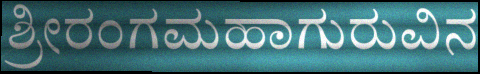
ಶ್ರೀರಂಗಮಹಾಗುರುವಿನ